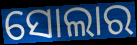
ସୋଲାର